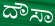
ದೌಸಾ